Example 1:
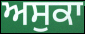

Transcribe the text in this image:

ਅਸੁਕਾ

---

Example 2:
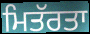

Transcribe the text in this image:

ਮਿਤੱਰਤਾ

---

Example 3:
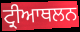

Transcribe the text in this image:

ਟ੍ਰੀਆਥਲਨ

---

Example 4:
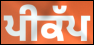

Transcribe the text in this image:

ਪੀਕੱਪ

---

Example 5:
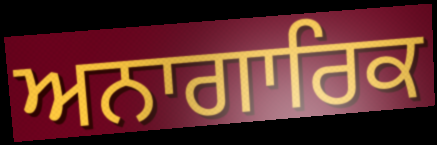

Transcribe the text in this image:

ਅਨਾਗਾਰਿਕ